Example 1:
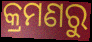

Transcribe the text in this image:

କ୍ରମଣରୁ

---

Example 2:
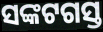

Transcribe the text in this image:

ସଙ୍କଟଗସ୍ତ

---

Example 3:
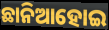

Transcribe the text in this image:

ଛାନିଆହୋଇ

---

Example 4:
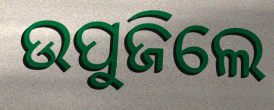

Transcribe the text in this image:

ଉପୁଜିଲେ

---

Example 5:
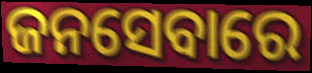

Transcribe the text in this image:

ଜନସେବାରେ